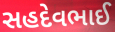
સહદેવભાઈ